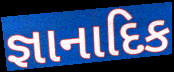
જ્ઞાનાદિક